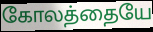
கோலத்தையே